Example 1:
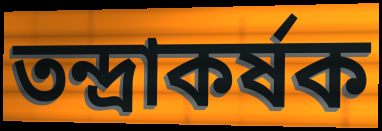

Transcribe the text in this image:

তন্দ্রাকর্ষক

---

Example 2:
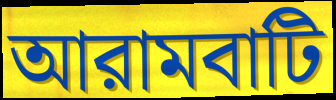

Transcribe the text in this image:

আরামবাটি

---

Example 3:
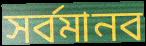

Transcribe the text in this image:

সর্বমানব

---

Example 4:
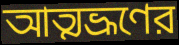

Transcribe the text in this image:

আত্মভ্রূণের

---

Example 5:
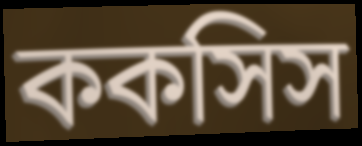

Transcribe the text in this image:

ককসিস